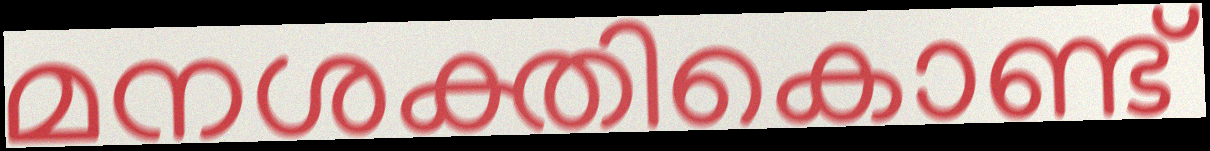
മനശക്തികൊണ്ട്